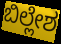
ಬಿಲ್ಲೇಶ